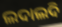
ଲଦାଲଦି